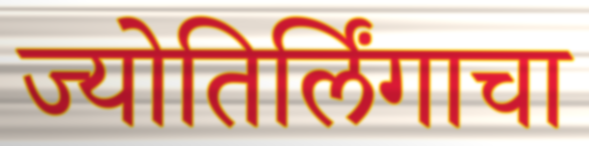
ज्योतिर्लिंगाचा